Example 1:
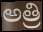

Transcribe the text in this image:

అత్రి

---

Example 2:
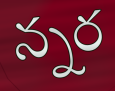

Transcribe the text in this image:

న్నర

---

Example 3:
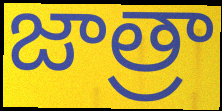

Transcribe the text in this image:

జాత్రా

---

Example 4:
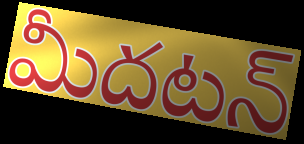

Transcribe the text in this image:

మీదటన్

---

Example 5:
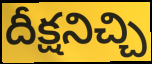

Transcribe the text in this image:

దీక్షనిచ్చి